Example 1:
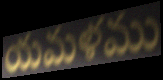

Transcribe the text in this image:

యమళము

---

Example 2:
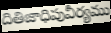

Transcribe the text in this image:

దితిజాధిపువీర్యము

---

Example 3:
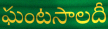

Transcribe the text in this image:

ఘంటసాలదీ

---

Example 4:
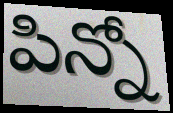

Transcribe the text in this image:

పిన్నో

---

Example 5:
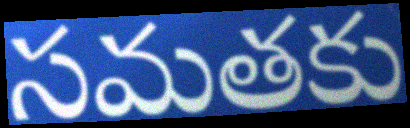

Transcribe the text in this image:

సమతకు